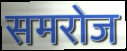
समरोज